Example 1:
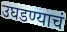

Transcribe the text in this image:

उघडण्याचं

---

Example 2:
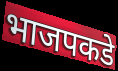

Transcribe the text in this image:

भाजपकडे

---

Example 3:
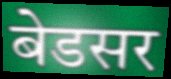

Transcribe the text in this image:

बेडसर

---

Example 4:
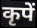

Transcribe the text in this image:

कृपें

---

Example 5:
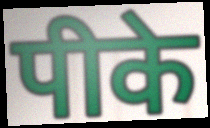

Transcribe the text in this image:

पीके